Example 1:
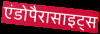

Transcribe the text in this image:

एंडोपैरासाइट्स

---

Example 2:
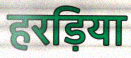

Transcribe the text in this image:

हरड़िया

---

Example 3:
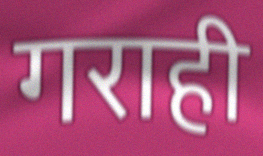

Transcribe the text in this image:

गराही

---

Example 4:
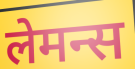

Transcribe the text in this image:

लेमन्स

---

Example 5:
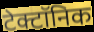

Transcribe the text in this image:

टेक्टॉनिक